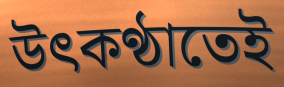
উৎকণ্ঠাতেই